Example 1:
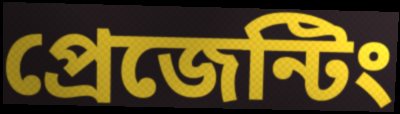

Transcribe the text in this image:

প্রেজেন্টিং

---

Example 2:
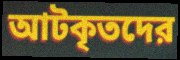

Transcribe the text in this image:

আটকৃতদের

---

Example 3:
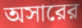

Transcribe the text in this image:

অসারের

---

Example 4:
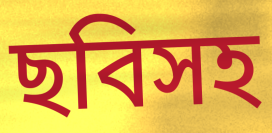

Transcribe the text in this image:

ছবিসহ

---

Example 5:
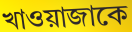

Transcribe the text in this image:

খাওয়াজাকে